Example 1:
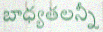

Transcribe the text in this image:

బాధ్యతలన్నీ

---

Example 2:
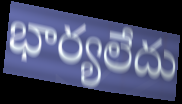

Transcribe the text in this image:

భార్యలేదు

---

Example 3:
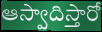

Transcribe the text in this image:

ఆస్వాదిస్తారో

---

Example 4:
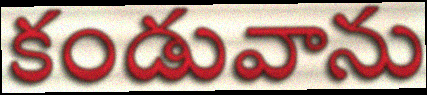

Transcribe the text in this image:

కండువాను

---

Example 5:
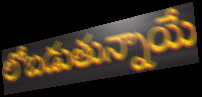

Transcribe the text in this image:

లోబడుతున్నాయే